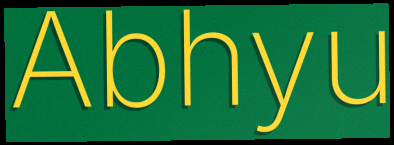
Abhyu